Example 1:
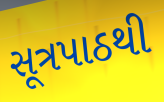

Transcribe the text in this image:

સૂત્રપાઠથી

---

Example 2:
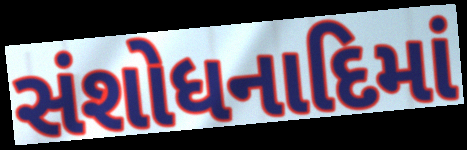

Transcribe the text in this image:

સંશોધનાદિમાં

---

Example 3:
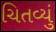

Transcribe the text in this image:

ચિતવ્યું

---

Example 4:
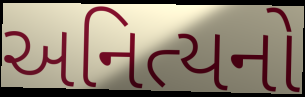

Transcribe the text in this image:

અનિત્યનો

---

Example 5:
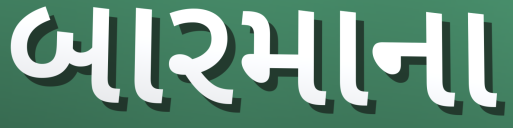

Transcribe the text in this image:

બારમાના